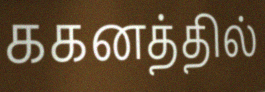
ககனத்தில்